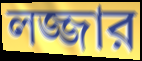
লজ্জার